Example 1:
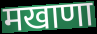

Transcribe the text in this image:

मखाणा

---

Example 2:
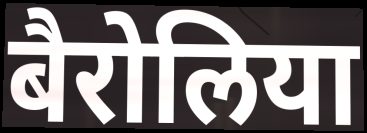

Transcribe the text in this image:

बैरोलिया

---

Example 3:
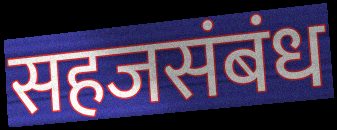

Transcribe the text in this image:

सहजसंबंध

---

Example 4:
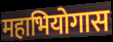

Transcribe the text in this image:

महाभियोगास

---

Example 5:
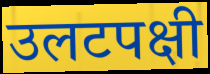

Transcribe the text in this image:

उलटपक्षी